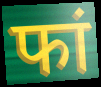
फां